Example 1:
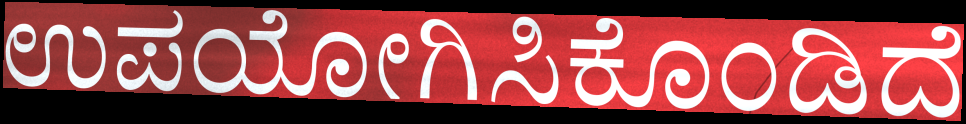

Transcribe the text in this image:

ಉಪಯೋಗಿಸಿಕೊಂಡಿದೆ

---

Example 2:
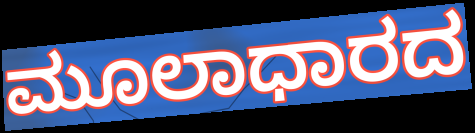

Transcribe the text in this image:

ಮೂಲಾಧಾರದ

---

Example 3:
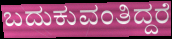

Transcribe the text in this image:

ಬದುಕುವಂತಿದ್ದರೆ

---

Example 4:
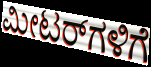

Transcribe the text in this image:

ಮೀಟರ್‌ಗಳಿಗೆ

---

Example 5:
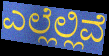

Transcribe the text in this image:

ಎಲ್ಲೆಲ್ಲಿವೆ